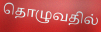
தொழுவதில்